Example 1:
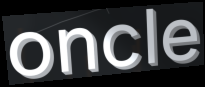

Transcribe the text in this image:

oncle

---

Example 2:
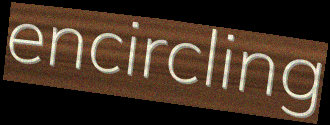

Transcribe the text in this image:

encircling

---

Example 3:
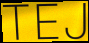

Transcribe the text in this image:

TEJ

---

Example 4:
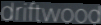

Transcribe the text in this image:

driftwood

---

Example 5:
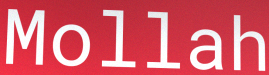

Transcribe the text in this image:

Mollah